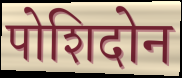
पोशिदोन